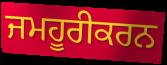
ਜਮਹੂਰੀਕਰਨ